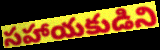
సహాయకుడిని